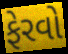
ફેરવો